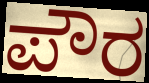
ಪೌರ